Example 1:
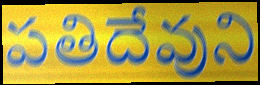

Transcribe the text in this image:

పతిదేవుని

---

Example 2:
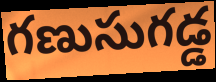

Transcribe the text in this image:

గణుసుగడ్డ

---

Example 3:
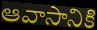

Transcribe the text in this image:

ఆవాసానికి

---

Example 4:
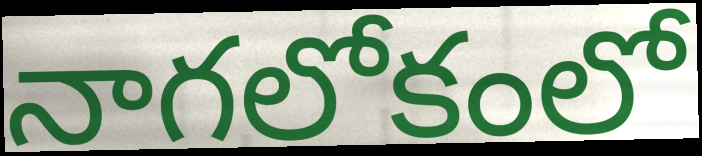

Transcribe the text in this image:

నాగలోకంలో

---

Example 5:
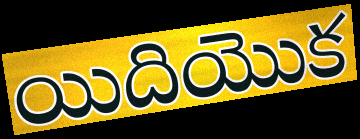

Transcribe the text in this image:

యిదియొక